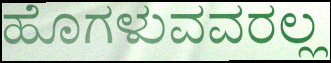
ಹೊಗಳುವವರಲ್ಲ